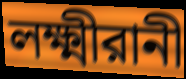
লক্ষ্মীরানী